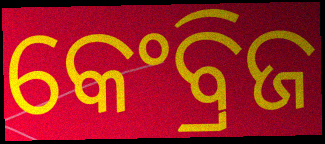
କେଂବ୍ରିଜ